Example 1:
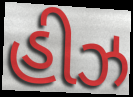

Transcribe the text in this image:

હીઝ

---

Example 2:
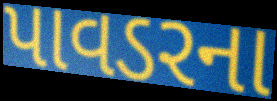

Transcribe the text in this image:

પાવડરના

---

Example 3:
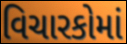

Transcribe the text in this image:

વિચારકોમાં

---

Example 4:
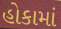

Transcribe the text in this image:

હોકામાં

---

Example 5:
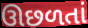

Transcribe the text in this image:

ઊછળતાં